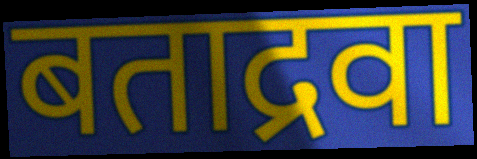
बताद्रवा